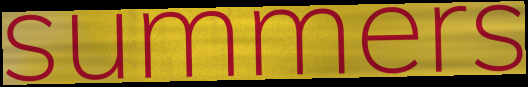
summers